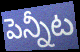
పెన్నీట